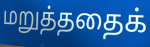
மறுத்ததைக்